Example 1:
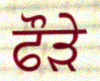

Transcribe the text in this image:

ਫੌੜੇ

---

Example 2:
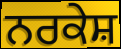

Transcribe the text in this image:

ਨਰਕੇਸ਼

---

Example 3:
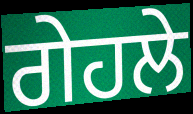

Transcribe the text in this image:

ਗੇਹਲੇ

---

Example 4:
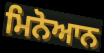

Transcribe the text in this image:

ਮਿਨੋਆਨ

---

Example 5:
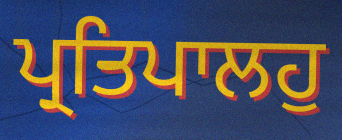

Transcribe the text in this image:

ਪ੍ਰਤਿਪਾਲਹੁ